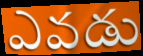
ఎవడు